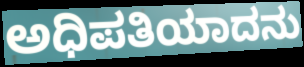
ಅಧಿಪತಿಯಾದನು